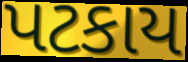
પટકાય